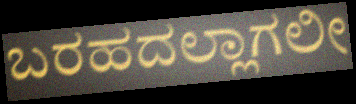
ಬರಹದಲ್ಲಾಗಲೀ